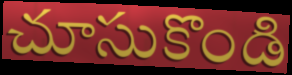
చూసుకొండి